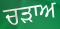
ਚੜਾਅ